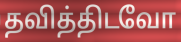
தவித்திடவோ